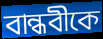
বান্ধবীকে